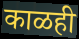
काळही